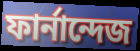
ফার্নান্দেজ